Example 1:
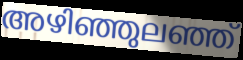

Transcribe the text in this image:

അഴിഞ്ഞുലഞ്ഞ്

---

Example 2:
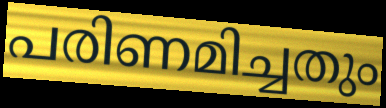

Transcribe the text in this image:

പരിണമിച്ചതും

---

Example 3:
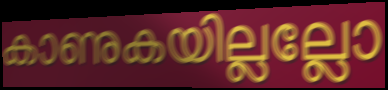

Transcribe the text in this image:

കാണുകയില്ലല്ലോ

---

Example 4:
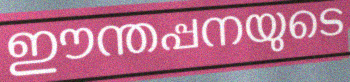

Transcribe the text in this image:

ഈന്തപ്പനയുടെ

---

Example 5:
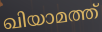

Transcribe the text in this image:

ഖിയാമത്ത്